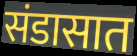
संडासात